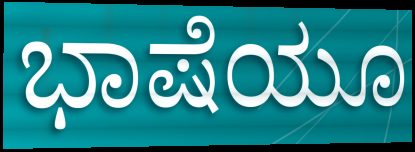
ಭಾಷೆಯೂ